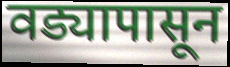
वड्यापासून